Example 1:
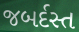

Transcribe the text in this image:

જબર્દસ્ત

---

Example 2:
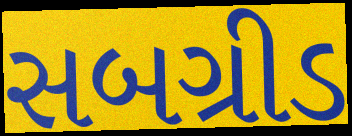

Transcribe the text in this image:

સબગ્રીડ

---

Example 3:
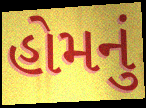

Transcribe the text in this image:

હોમનું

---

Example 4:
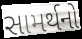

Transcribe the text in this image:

સામર્થનો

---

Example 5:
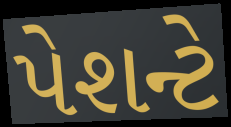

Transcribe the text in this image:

પેશન્ટે